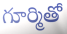
గూర్మితో